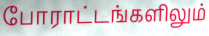
போராட்டங்களிலும்